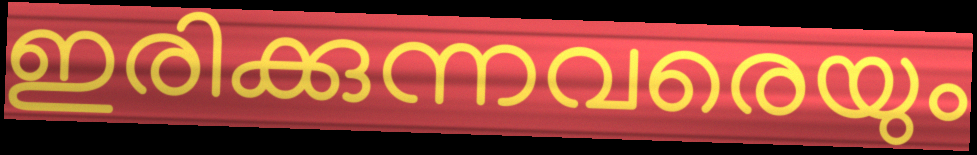
ഇരിക്കുന്നവരെയും